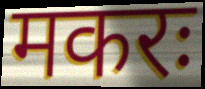
मकरः